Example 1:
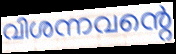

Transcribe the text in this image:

വിശന്നവന്റെ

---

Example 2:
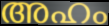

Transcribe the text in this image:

അഹം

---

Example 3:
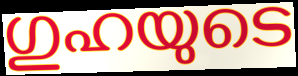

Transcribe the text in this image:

ഗുഹയുടെ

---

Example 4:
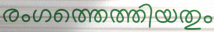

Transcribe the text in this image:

രംഗത്തെത്തിയതും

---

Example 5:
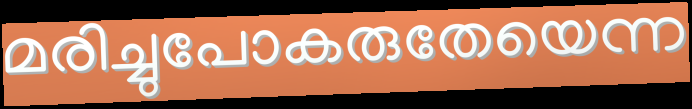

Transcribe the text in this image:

മരിച്ചുപോകരുതേയെന്ന